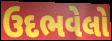
ઉદભવેલો